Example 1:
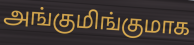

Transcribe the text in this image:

அங்குமிங்குமாக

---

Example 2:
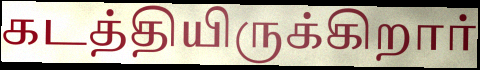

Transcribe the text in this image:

கடத்தியிருக்கிறார்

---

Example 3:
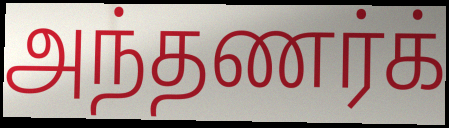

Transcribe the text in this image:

அந்தணர்க்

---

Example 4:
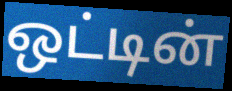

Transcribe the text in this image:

ஒட்டின்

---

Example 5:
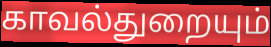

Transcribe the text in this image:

காவல்துறையும்